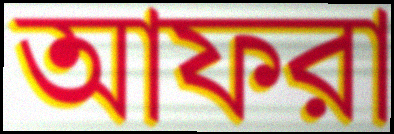
আফরা